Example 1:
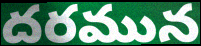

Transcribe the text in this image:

దరమున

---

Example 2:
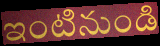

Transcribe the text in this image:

ఇంటినుండి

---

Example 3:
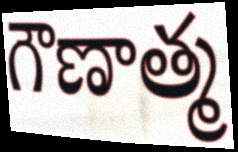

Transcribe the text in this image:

గౌణాత్మ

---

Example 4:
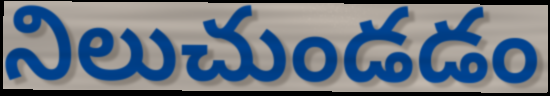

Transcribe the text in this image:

నిలుచుండడం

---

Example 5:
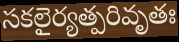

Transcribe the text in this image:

సకలైర్యత్పరివృతః